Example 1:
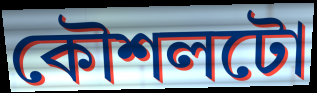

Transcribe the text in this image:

কৌশলটো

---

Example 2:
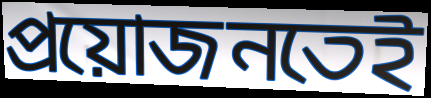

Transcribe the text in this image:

প্ৰয়োজনতেই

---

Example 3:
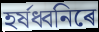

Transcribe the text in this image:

হৰ্ষধ্বনিৰে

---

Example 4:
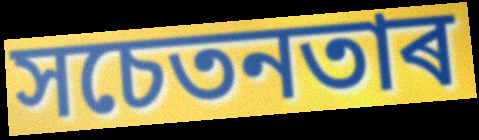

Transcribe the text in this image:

সচেতনতাৰ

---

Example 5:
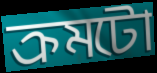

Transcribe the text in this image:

ক্ৰমটো